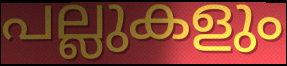
പല്ലുകളും